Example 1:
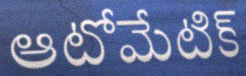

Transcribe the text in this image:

ఆటోమేటిక్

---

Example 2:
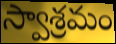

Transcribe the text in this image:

స్వాశ్రమం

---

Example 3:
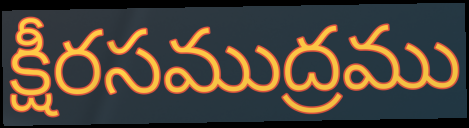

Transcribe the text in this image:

క్షీరసముద్రము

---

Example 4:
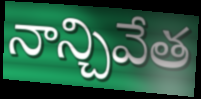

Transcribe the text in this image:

నాన్చివేత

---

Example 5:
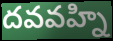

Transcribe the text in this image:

దవవహ్ని